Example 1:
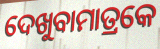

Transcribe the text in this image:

ଦେଖୁବାମାତ୍ରକେ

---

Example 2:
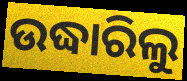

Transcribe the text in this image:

ଉଦ୍ଧାରିଲୁ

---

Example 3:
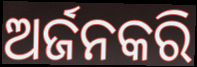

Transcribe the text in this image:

ଅର୍ଜନକରି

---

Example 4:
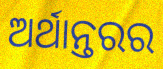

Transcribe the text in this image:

ଅର୍ଥାନ୍ତରର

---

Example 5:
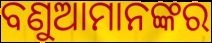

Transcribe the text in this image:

ବଣୁଆମାନଙ୍କର